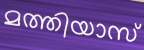
മത്തിയാസ്